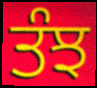
ਤੰਝ